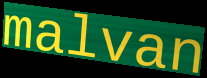
malvan